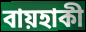
বায়হাকী